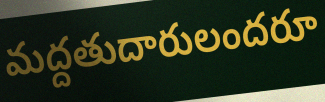
మద్దతుదారులందరూ